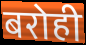
बरोही